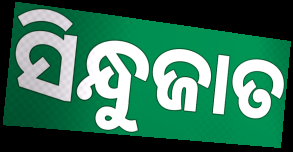
ସିନ୍ଧୁଜାତ